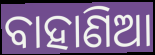
ବାହାଣିଆ